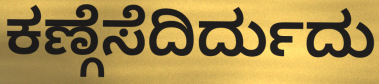
ಕಣ್ಗೆಸೆದಿರ್ದುದು